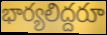
భార్యలిద్దరూ